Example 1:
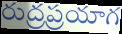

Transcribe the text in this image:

రుద్రప్రయాగ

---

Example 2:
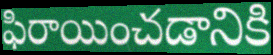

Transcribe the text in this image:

ఫిరాయించడానికి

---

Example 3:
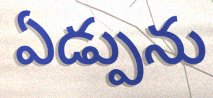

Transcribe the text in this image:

ఏడ్పును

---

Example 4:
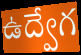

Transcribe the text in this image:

ఉద్వేగ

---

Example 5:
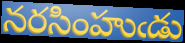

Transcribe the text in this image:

నరసింహుఁడు